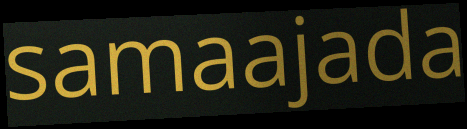
samaajada